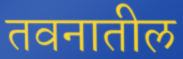
तवनातील